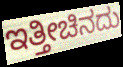
ಇತ್ತೀಚಿನದು